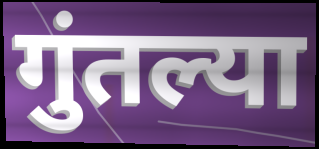
गुंतल्या